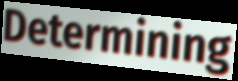
Determining